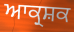
ਆਕ੍ਰਸ਼ਕ